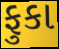
ફુકા